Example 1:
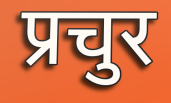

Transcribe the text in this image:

प्रचुर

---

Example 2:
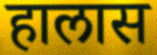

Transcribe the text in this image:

हालास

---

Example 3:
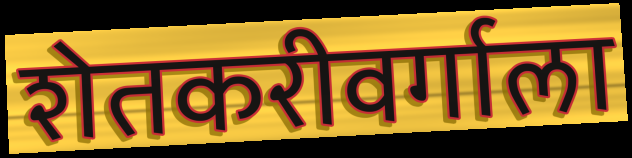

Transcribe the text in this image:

शेतकरीवर्गाला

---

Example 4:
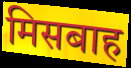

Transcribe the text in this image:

मिसबाह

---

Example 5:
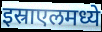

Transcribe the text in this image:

इस्राएलमध्ये